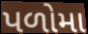
પળોમા